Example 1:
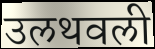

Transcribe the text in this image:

उलथवली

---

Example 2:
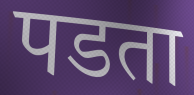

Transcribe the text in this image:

पडता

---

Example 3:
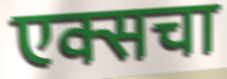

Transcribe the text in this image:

एक्सचा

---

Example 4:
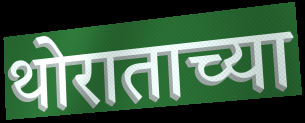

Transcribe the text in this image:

थोराताच्या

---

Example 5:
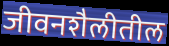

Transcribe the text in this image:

जीवनशैलीतील